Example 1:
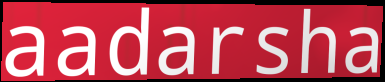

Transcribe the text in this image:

aadarsha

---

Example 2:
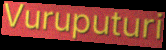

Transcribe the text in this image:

Vuruputuri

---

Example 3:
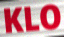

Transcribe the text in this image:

KLO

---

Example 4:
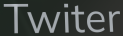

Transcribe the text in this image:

Twiter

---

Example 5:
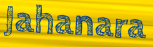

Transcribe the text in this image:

Jahanara